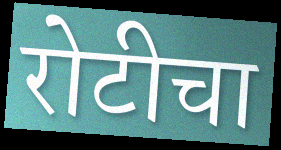
रोटीचा